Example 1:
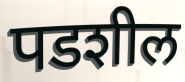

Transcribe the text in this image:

पडशील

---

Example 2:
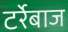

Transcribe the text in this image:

टर्रेबाज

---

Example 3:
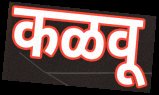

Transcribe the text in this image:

कळवू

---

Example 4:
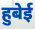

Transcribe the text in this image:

हुबेई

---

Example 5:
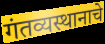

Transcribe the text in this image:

गंतव्यस्थानाचे